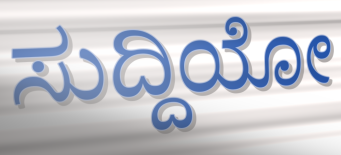
ಸುದ್ದಿಯೋ